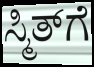
ಸ್ಮಿತ್‌ಗೆ